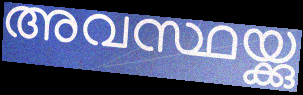
അവസ്ഥയ്ക്കു